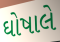
ઘોષાલે